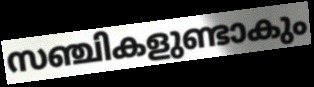
സഞ്ചികളുണ്ടാകും